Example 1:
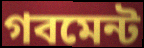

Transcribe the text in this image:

গবমেন্ট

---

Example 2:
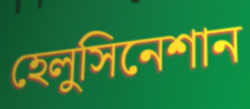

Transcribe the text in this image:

হেলুসিনেশান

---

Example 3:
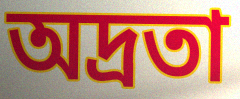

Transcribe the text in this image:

অদ্রতা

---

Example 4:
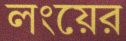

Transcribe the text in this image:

লংয়ের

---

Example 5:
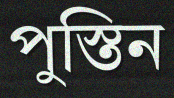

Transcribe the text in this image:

পুস্তিন